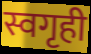
स्वगृही